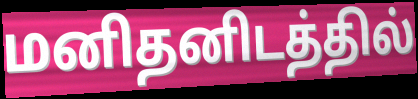
மனிதனிடத்தில்